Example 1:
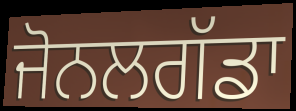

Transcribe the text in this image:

ਜੋਨਲਗੱਡਾ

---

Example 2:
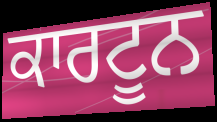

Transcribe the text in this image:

ਕਾਰਟੂਨ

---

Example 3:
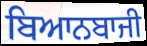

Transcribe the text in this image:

ਬਿਆਨਬਾਜੀ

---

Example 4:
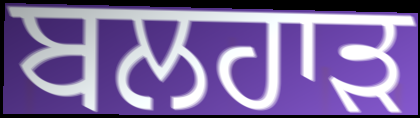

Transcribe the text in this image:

ਬਲਹਾੜ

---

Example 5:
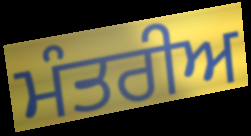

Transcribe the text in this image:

ਮੰਤਰੀਅ